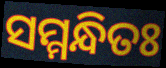
ସମ୍ମନ୍ଧିତଃ